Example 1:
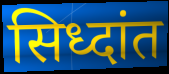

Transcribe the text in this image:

सिध्दांत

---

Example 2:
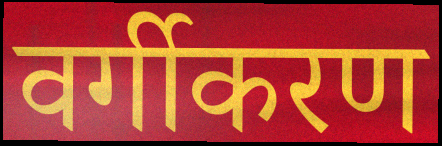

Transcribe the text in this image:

वर्गीकरण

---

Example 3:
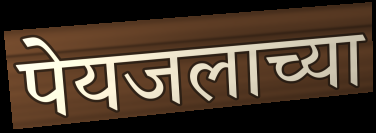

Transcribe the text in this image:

पेयजलाच्या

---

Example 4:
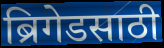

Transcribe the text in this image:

ब्रिगेडसाठी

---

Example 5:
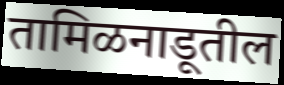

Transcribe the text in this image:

तामिळनाडूतील